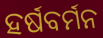
ହର୍ଷବର୍ମନ